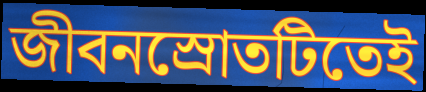
জীবনস্রোতটিতেই